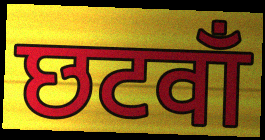
छटवाँ